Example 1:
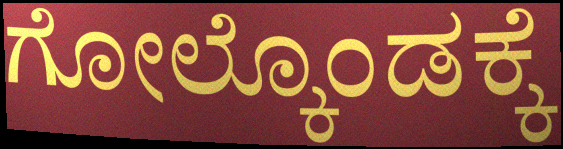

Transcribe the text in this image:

ಗೋಲ್ಕೊಂಡಕ್ಕೆ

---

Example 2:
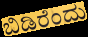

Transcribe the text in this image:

ಬಿಡಿರೆಂದು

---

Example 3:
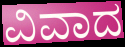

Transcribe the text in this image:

ವಿವಾದ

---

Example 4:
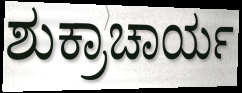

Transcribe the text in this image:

ಶುಕ್ರಾಚಾರ್ಯ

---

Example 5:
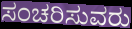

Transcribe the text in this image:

ಸಂಚರಿಸುವರು